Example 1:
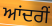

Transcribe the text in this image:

ਆਂਦਰੀਂ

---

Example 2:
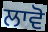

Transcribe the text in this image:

ਲਾਵੋ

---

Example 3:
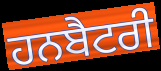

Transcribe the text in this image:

ਹਨਬੈਟਰੀ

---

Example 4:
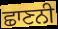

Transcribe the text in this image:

ਛਾਣਨੀ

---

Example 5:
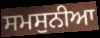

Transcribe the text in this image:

ਸਮਸੁਨੀਆ